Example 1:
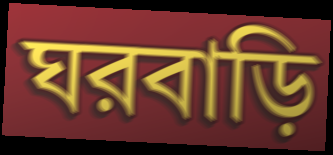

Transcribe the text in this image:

ঘরবাড়ি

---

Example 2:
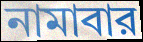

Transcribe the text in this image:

নামাবার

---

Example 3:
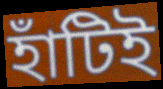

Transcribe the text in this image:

হাঁটিই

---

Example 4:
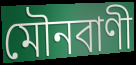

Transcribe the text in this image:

মৌনবাণী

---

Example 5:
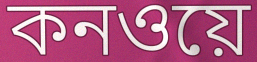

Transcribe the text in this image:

কনওয়ে